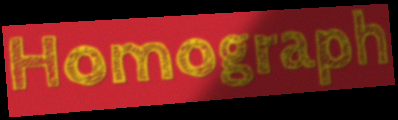
Homograph